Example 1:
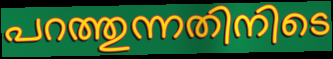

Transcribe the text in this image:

പറത്തുന്നതിനിടെ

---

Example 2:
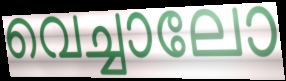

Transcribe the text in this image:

വെച്ചാലോ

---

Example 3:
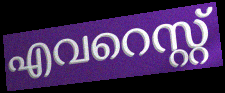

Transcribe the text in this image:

എവറെസ്റ്റ്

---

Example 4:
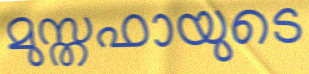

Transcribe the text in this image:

മുസ്തഫായുടെ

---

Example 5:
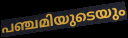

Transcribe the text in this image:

പഞ്ചമിയുടെയും